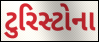
ટુરિસ્ટોના